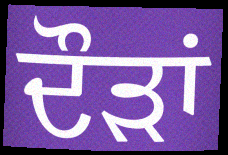
ਦੌੜਾਂ